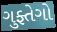
ગુફ્તેગો